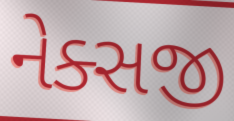
નેક્સજી